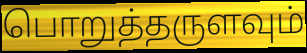
பொறுத்தருளவும்